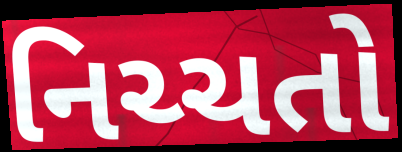
નિચ્ચતો